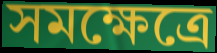
সমক্ষেত্রে